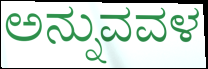
ಅನ್ನುವವಳ